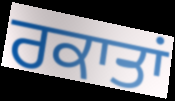
ਰਕਾਤਾਂ